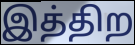
இத்திற